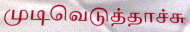
முடிவெடுத்தாச்சு